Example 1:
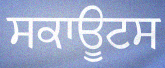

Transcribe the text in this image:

ਸਕਾਊਟਸ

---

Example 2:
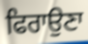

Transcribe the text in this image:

ਫਿਰਾਉਣਾ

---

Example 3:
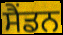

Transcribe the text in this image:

ਸੈਂਡਨ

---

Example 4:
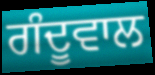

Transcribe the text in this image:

ਗੰਦੂਵਾਲ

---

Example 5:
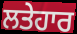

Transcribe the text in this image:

ਲਤੇਹਾਰ